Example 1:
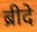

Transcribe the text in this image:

ब्रीदे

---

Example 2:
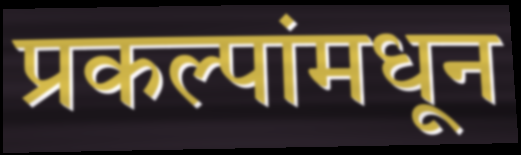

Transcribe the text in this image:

प्रकल्पांमधून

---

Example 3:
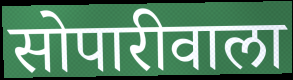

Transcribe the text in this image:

सोपारीवाला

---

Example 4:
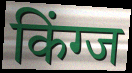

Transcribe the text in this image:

किंग्ज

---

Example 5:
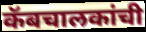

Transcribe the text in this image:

कॅबचालकांची